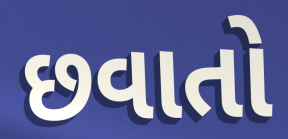
છવાતો